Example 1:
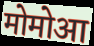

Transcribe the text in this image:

मोमोआ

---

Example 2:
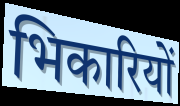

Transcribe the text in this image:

भिकारियों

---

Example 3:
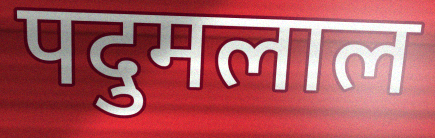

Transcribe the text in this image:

पदुमलाल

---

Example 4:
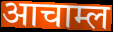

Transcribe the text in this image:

आचाम्ल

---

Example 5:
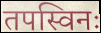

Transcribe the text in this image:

तपस्विनः